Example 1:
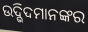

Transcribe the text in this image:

ଉଦ୍ଭିଦମାନଙ୍କର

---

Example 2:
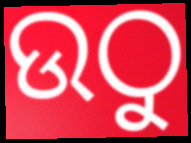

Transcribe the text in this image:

ଉଠୁ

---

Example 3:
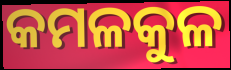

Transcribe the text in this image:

କମଳକୁଳ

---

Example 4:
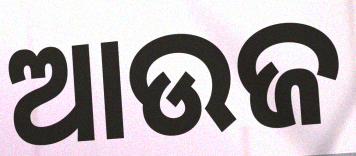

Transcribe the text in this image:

ଆଉଜ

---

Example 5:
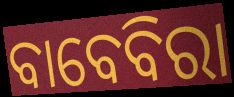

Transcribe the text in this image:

ବାବେବିରା